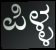
ಪಿಳ್ಳ